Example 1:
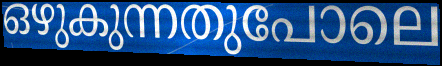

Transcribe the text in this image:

ഒഴുകുന്നതുപോലെ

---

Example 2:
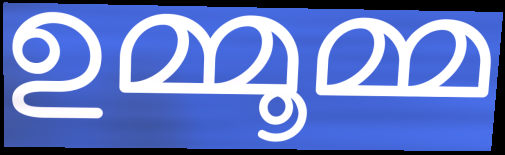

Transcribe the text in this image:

ഉമ്മൂമ്മ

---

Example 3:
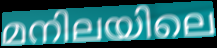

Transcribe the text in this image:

മനിലയിലെ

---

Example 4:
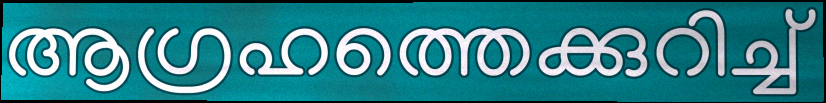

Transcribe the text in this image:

ആഗ്രഹത്തെക്കുറിച്ച്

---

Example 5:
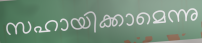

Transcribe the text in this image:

സഹായിക്കാമെന്നു